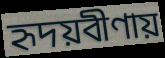
হৃদয়বীণায়